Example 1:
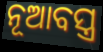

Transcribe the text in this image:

ନୂଆବସ୍ତ୍ର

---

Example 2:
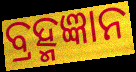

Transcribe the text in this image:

ବ୍ରହ୍ମଜ୍ଞାନ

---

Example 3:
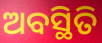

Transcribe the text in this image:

ଅବସ୍ଥିତି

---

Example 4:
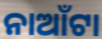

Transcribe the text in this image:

ନାଆଁଟା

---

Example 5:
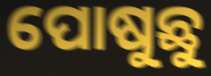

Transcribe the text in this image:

ପୋଷୁଛୁ